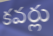
కవర్లు